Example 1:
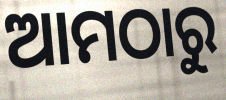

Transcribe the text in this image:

ଆମଠାରୁ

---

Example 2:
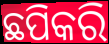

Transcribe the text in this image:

ଛପିକରି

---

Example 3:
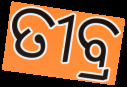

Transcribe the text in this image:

ତୀବ୍ର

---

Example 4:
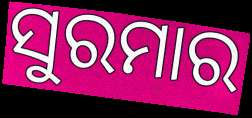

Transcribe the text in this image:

ସୁରମାର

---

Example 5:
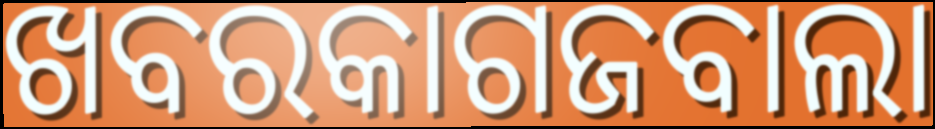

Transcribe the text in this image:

ଖବରକାଗଜବାଲା